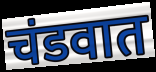
चंडवात